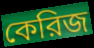
কেরিজ